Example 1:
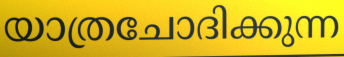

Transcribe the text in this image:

യാത്രചോദിക്കുന്ന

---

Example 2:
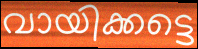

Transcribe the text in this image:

വായിക്കട്ടെ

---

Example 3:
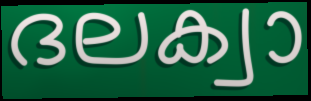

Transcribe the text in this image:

ദലക്വാ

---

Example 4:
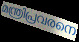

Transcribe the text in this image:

മന്ത്രിപ്രവരനെ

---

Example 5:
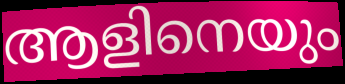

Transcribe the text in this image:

ആളിനെയും